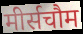
मीर्सचौम